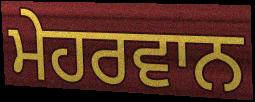
ਮੇਹਰਵਾਨ